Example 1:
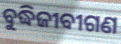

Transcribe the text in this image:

ବୁଦ୍ଧିଜୀବୀଗଣ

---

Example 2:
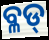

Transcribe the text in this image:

ବ୍ଳଡ୍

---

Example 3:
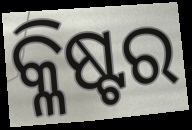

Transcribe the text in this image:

କ୍ଳିଷ୍ଟର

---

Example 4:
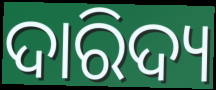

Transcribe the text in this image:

ଦାରିଦ୍ୟ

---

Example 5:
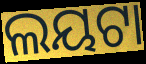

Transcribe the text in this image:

ଲୟଟା